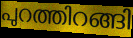
പുറത്തിറങ്ങി